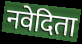
नवेदिता